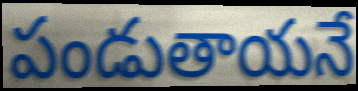
పండుతాయనే